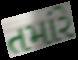
તમાંરે